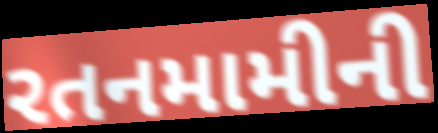
રતનમામીની